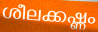
ശീലക്കഷ്ണം